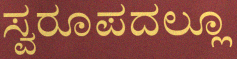
ಸ್ವರೂಪದಲ್ಲೂ